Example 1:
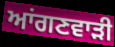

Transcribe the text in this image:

ਆਂਗਣਵਾੜੀ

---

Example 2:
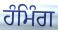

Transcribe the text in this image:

ਹੰਮਿੰਗ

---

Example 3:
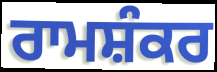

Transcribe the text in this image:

ਰਾਮਸ਼ੰਕਰ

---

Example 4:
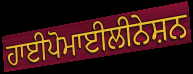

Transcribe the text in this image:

ਹਾਈਪੋਮਾਈਲੀਨੇਸ਼ਨ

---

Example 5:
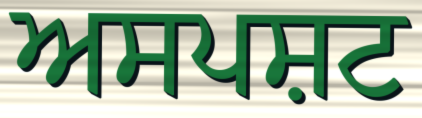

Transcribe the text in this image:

ਅਸਪਸ਼ਟ